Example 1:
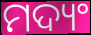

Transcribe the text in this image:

ମଦ୍ୟଂ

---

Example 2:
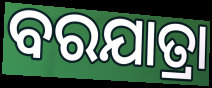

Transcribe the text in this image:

ବରଯାତ୍ରା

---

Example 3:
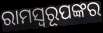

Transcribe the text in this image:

ରାମସ୍ୱରୂପଙ୍କର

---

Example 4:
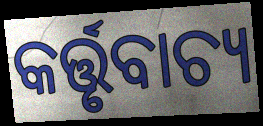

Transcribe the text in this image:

କର୍ତ୍ତୃବାଚ୍ୟ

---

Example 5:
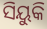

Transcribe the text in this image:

ସିୟୁକି